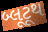
બ્લૂટૂથ